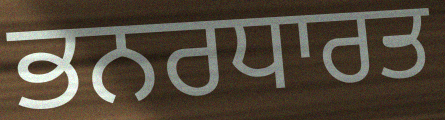
ਭਨਰਧਾਰਤ